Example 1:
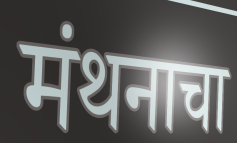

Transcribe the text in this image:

मंथनाचा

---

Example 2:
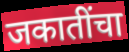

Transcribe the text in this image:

जकातींचा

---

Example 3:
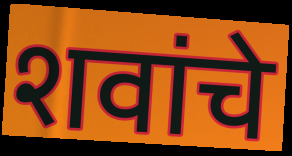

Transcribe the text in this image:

शवांचे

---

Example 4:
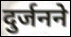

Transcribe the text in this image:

दुर्जनने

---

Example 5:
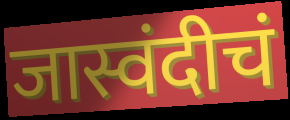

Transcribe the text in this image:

जास्वंदीचं